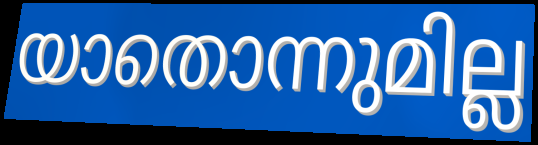
യാതൊന്നുമില്ല